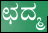
ಛದ್ಮ